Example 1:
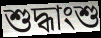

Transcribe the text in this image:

শুদ্ধাংশু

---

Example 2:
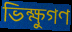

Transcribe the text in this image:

ভিক্ষুগণ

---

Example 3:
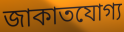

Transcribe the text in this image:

জাকাতযোগ্য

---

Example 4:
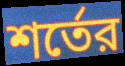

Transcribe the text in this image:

শর্তের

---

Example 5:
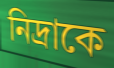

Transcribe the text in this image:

নিদ্রাকে